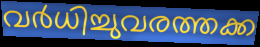
വർധിച്ചുവരത്തക്ക